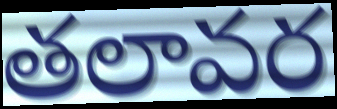
తలావర